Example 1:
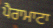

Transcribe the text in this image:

ਪੈਰਾਮਾਟਾ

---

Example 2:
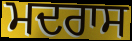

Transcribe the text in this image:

ਮਦਰਾਸ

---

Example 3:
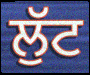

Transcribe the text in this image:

ਲੁੱਟ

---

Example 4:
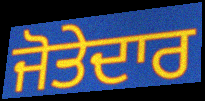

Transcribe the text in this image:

ਜੋਤੇਦਾਰ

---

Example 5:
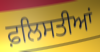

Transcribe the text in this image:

ਫ਼ਲਿਸਤੀਆਂ